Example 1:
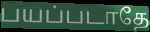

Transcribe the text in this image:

பயப்படாதே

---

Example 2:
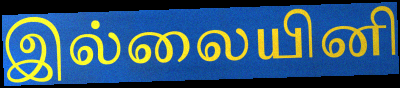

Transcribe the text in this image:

இல்லையினி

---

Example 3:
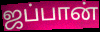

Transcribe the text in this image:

ஜப்பான்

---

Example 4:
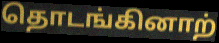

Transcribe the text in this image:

தொடங்கினாற்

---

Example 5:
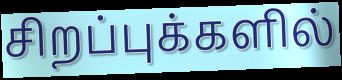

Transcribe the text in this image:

சிறப்புக்களில்